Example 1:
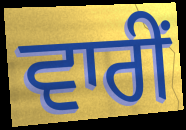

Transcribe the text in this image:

ਵਾਰੀਂ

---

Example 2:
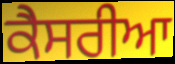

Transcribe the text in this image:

ਕੈਸਰੀਆ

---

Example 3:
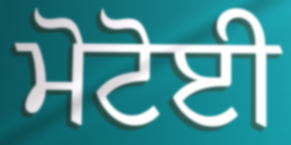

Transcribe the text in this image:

ਮੋਟੋਈ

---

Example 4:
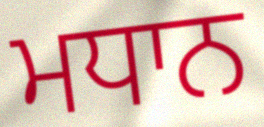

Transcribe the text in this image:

ਮਧਾਨ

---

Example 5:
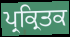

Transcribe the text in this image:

ਪ੍ਰਕ੍ਰਿਤਕ